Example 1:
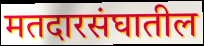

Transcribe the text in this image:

मतदारसंघातील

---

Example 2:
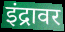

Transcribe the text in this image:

इंद्रावर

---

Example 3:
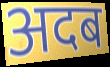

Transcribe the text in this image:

अदब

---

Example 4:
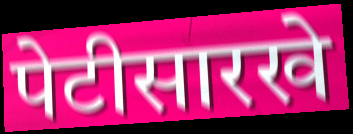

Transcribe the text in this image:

पेटीसारखे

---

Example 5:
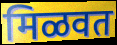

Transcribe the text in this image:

मिळवत